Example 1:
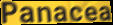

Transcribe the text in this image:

Panacea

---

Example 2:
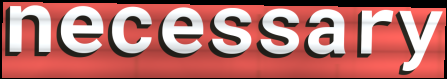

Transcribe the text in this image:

necessary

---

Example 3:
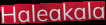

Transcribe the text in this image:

Haleakala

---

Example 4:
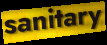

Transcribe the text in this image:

sanitary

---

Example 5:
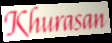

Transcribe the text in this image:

Khurasan